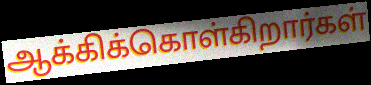
ஆக்கிக்கொள்கிறார்கள்